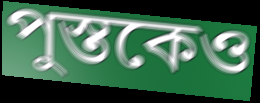
পুস্তকেও